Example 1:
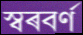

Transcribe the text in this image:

স্বৰবৰ্ণ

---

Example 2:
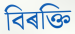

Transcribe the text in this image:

বিৰক্তি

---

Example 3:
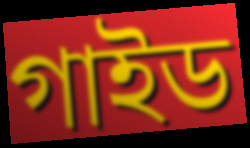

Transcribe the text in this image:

গাইড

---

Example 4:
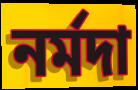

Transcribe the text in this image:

নৰ্মদা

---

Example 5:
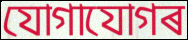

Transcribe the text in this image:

যোগাযোগৰ